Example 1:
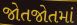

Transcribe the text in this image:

જોતજોતમાં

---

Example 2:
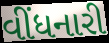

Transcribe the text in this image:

વીંધનારી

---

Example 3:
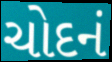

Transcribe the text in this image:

ચોદનં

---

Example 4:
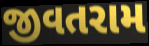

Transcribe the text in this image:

જીવતરામ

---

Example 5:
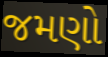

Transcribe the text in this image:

જમણો